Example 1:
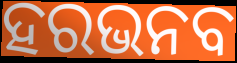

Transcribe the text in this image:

ହରଭନବ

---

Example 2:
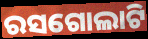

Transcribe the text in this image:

ରସଗୋଲାଟି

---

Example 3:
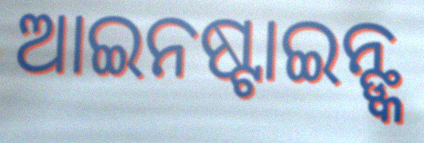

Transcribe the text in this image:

ଆଇନଷ୍ଟାଇନ୍ଙ୍କ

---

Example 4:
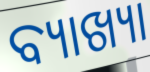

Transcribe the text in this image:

ବ୍ୟାଖ୍ୟା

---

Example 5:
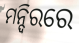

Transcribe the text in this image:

ମନ୍ଦିରରେ